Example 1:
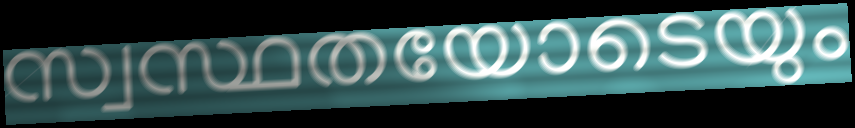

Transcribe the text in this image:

സ്വസ്ഥതയോടെയും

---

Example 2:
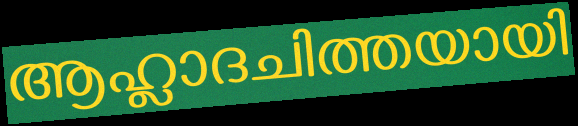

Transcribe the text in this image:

ആഹ്ലാദചിത്തയായി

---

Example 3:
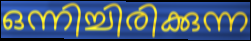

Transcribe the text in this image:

ഒന്നിച്ചിരിക്കുന്ന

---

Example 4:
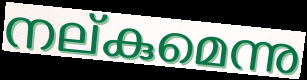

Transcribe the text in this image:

നല്‌കുമെന്നു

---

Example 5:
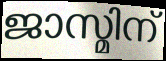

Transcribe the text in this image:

ജാസ്മിന്